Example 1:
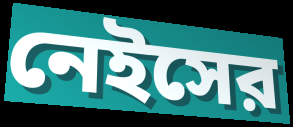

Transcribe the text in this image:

নেইসের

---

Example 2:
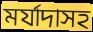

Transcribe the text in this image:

মর্যাদাসহ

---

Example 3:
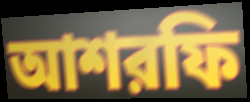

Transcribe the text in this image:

আশরফি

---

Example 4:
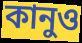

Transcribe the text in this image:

কানুও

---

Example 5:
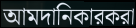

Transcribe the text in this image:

আমদানিকারকরা